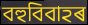
বহুবিবাহৰ